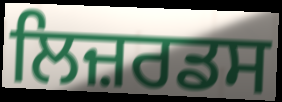
ਲਿਜ਼ਰਡਸ